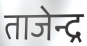
ताजेन्द्र